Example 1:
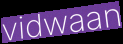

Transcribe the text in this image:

vidwaan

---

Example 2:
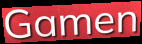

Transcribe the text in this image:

Gamen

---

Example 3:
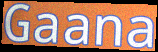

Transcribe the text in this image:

Gaana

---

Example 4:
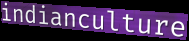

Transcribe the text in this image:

indianculture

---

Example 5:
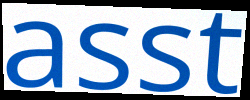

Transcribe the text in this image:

asst